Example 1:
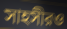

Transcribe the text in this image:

সাহসীরও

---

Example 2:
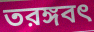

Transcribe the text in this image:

তরঙ্গবৎ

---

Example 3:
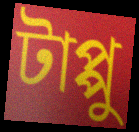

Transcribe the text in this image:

টাপ্পু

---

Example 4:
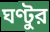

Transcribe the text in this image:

ঘণ্টুর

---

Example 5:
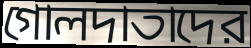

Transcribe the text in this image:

গোলদাতাদের